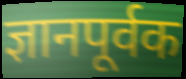
ज्ञानपूर्वक